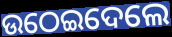
ଉଠେଇଦେଲେ